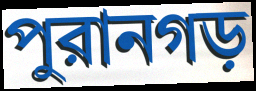
পুরানগড়